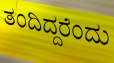
ತಂದಿದ್ದರೆಂದು